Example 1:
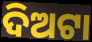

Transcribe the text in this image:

ଦିଅଟା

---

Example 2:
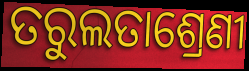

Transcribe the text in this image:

ତରୁଲତାଶ୍ରେଣୀ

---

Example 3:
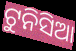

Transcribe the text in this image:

ଟୁନିସିଆ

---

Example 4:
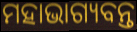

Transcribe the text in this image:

ମହାଭାଗ୍ୟବନ୍ତ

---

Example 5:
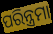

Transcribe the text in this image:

ପରିନ୍ତ୍ରମା